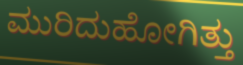
ಮುರಿದುಹೋಗಿತ್ತು